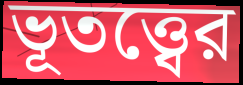
ভূতত্ত্বের